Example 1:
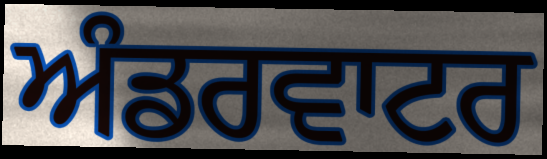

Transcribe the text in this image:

ਅੰਡਰਵਾਟਰ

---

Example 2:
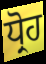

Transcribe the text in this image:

ਧ੍ਰੋਹ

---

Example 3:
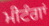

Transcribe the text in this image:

ਮੀਟੰਗਾਂ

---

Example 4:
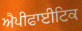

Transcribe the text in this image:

ਐਪੀਫਾਈਟਿਕ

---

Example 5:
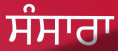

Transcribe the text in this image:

ਸੰਸਾਰਾ